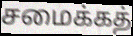
சமைக்கத்